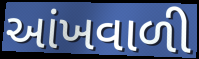
આંખવાળી